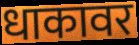
धाकावर